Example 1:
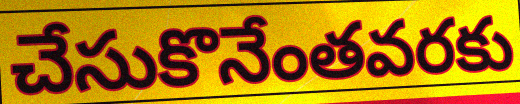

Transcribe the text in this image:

చేసుకొనేంతవరకు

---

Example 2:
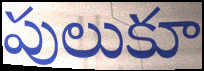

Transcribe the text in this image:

పులుకూ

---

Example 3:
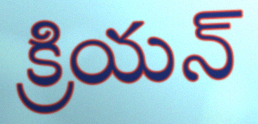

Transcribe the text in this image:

క్రియన్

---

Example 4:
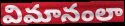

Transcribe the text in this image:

విమానంలా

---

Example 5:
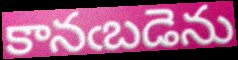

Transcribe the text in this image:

కానఁబడెను